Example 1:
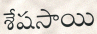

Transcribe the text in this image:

శేషసాయి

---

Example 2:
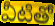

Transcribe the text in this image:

వీటితో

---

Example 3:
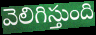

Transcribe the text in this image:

వెలిగిస్తుంది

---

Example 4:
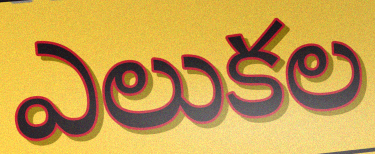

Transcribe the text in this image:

ఎలుకల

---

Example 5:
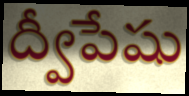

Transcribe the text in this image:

ద్వీపేషు